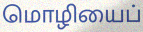
மொழியைப்